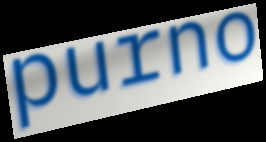
purno